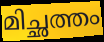
മിച്ഛത്തം